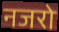
नजरो